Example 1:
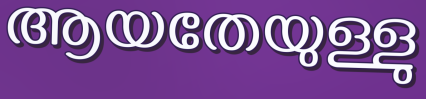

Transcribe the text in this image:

ആയതേയുള്ളു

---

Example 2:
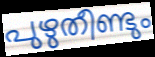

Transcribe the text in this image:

പുഴുതീണ്ടും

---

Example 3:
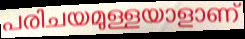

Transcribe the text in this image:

പരിചയമുള്ളയാളാണ്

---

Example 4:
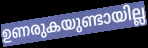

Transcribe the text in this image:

ഉണരുകയുണ്ടായില്ല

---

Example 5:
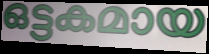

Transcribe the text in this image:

ഒട്ടകമായ